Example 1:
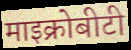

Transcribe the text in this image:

माइक्रोबीटी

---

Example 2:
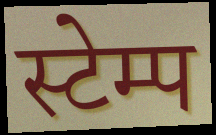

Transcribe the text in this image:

स्टेम्प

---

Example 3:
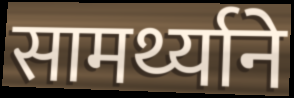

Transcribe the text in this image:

सामर्थ्याने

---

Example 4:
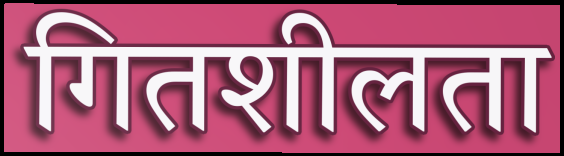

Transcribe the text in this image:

गितशीलता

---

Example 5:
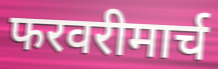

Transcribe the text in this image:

फरवरीमार्च